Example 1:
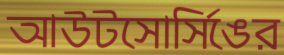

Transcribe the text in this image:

আউটসোর্সিঙের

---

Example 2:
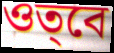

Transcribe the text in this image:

ওত্‌বে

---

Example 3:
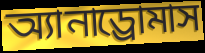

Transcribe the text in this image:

অ্যানাড্রোমাস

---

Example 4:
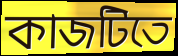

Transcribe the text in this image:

কাজটিতে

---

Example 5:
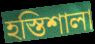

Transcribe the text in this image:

হস্তিশালা